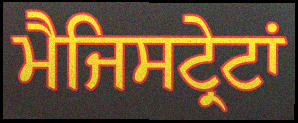
ਮੈਜਿਸਟ੍ਰੇਟਾਂ